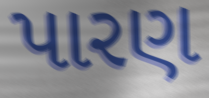
પારણ